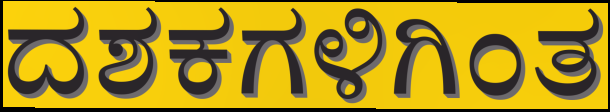
ದಶಕಗಳಿಗಿಂತ